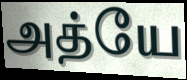
அத்யே